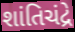
શાંતિચંદ્રે